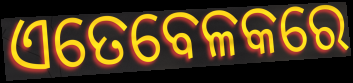
ଏତେବେଳକରେ